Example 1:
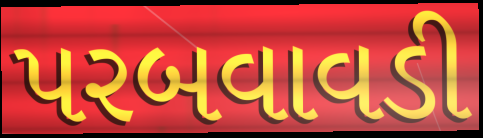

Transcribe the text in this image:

પરબવાવડી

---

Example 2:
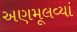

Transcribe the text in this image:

અણમૂલવ્યાં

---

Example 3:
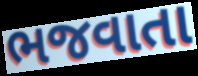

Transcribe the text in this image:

ભજવાતા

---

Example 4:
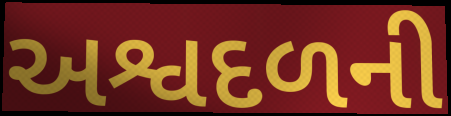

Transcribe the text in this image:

અશ્વદળની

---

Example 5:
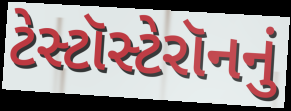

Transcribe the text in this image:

ટેસ્ટૉસ્ટેરૉનનું